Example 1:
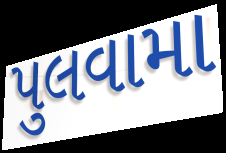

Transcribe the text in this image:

પુલવામા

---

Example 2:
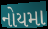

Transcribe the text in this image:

નોયમા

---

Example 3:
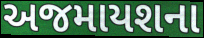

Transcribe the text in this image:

અજમાયશના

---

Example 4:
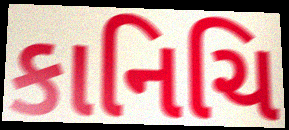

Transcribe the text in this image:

કાનિચિ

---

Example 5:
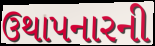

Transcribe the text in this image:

ઉથાપનારની